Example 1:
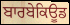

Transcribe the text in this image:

ਬਾਰਬੇਕਿਊਡ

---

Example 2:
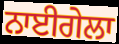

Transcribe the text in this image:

ਨਾਈਗੇਲਾ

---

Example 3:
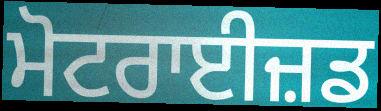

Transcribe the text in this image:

ਮੋਟਰਾਈਜ਼ਡ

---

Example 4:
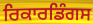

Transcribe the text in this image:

ਰਿਕਾਰਡਿੰਗਸ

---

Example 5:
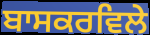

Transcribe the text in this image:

ਬਾਸਕਰਵਿਲੇ